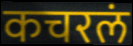
कचरलं